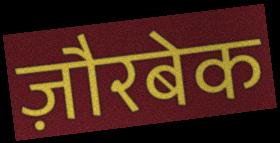
ज़ौरबेक